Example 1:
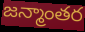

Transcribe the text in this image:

జన్మాంతర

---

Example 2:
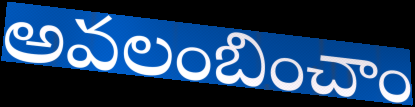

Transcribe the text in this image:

అవలంబించాం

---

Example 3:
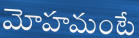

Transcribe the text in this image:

మోహమంటే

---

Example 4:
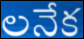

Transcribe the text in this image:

లనేక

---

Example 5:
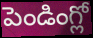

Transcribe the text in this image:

పెండింగ్లో